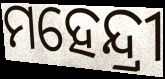
ମହେନ୍ଦ୍ରୀ